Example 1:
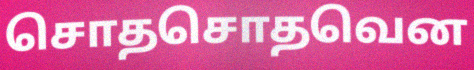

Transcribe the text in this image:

சொதசொதவென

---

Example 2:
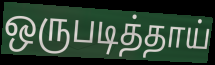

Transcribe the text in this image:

ஒருபடித்தாய்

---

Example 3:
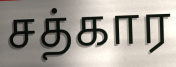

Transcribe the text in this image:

சத்கார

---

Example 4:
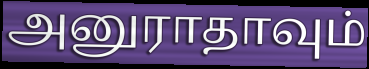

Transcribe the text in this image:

அனுராதாவும்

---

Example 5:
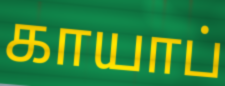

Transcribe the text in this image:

காயாப்